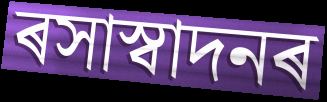
ৰসাস্বাদনৰ